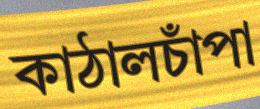
কাঠালচাঁপা